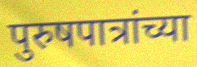
पुरुषपात्रांच्या